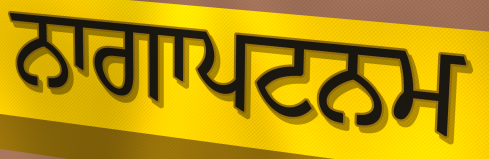
ਨਾਗਾਪਟਨਮ